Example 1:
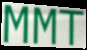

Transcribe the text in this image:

MMT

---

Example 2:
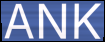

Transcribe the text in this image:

ANK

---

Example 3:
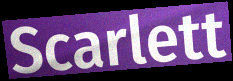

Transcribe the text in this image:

Scarlett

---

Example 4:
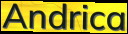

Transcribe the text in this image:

Andrica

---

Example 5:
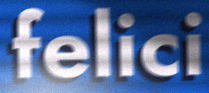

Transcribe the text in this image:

felici